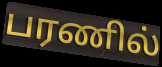
பரணில்